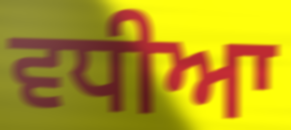
ਵਧੀਆ